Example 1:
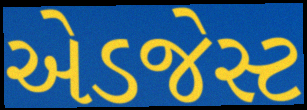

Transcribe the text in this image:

એડજેસ્ટ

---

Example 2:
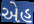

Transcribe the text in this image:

એહ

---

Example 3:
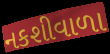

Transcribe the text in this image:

નકશીવાળા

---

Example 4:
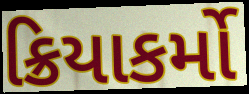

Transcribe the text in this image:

ક્રિયાકર્મો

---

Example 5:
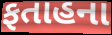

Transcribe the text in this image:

ફતાહના